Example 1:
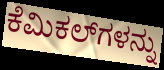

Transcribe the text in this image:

ಕೆಮಿಕಲ್‌ಗಳನ್ನು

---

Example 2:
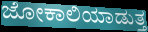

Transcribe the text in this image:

ಜೋಕಾಲಿಯಾಡುತ್ತ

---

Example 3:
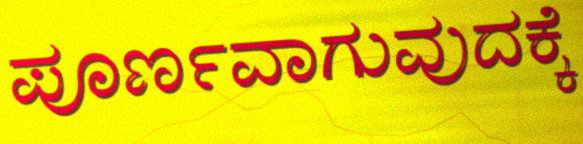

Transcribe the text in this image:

ಪೂರ್ಣವಾಗುವುದಕ್ಕೆ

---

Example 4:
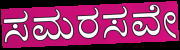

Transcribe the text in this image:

ಸಮರಸವೇ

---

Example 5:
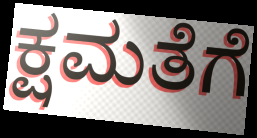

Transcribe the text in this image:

ಕ್ಷಮತೆಗೆ